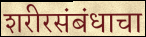
शरीरसंबंधाचा